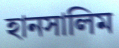
হানসালিম